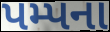
પમ્પના